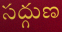
సద్గుణ